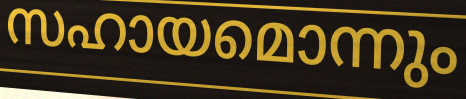
സഹായമൊന്നും